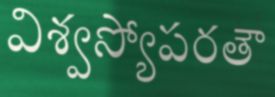
విశ్వస్యోపరతౌ